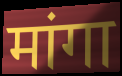
मांगा